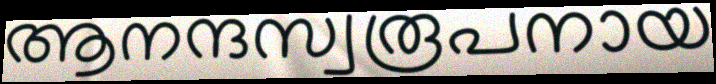
ആനന്ദസ്വരൂപനായ